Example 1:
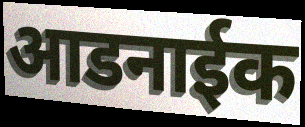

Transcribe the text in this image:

आडनाईक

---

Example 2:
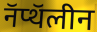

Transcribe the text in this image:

नॅप्थॅलीन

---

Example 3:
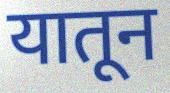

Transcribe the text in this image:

यातून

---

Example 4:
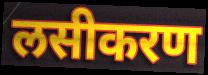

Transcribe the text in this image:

लसीकरण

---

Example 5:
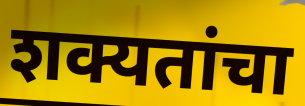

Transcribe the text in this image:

शक्यतांचा